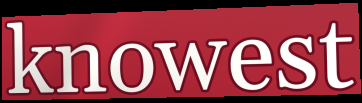
knowest